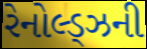
રેનોલ્ડ્ઝની